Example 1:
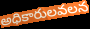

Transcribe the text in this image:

అధికారులవలన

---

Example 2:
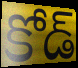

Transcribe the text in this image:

కోడ్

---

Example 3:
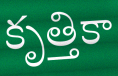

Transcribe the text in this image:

కృత్తికా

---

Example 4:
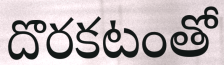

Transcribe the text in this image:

దొరకటంతో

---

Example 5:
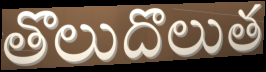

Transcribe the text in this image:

తొలుదొలుత